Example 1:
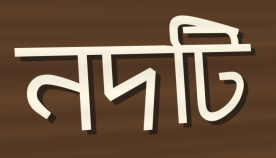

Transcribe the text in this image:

নদটি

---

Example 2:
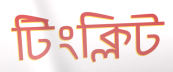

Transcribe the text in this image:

টিংক্লিট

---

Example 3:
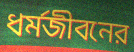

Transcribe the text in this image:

ধর্মজীবনের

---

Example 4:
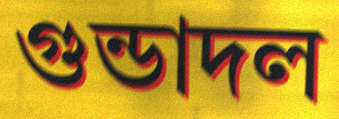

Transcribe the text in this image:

গুন্ডাদল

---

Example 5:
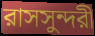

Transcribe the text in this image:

রাসসুন্দরী